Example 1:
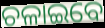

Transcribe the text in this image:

ଚଳାଇବେ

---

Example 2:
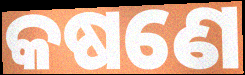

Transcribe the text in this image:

କଷଣେ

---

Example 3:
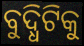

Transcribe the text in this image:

ବୁଦ୍ଧିଟିକୁ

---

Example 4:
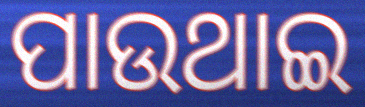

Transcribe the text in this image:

ପାଉଥାଇ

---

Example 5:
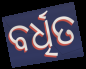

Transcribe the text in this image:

ବର୍ଧିତ